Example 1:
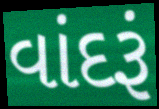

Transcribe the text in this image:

વાંદરૂં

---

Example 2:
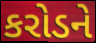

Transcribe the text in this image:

કરોડને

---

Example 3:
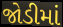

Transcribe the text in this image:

જોડીમાં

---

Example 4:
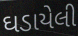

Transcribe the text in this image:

ઘડાયેલી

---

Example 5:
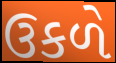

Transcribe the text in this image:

ઉકળે